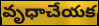
వృధాచేయక